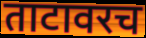
ताटावरच